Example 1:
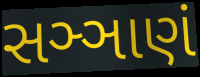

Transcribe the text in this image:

સઞ્ઞાણં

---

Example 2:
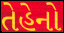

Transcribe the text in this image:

તેહેનો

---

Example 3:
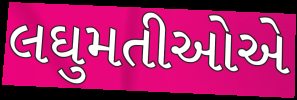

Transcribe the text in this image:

લઘુમતીઓએ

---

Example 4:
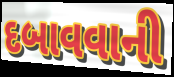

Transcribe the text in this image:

દબાવવાની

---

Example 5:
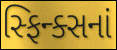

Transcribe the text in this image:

સ્ફિન્ક્સનાં